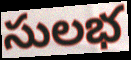
సులభ